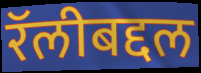
रॅलीबद्दल